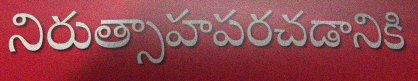
నిరుత్సాహపరచడానికి